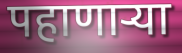
पहाणार्‍या